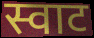
स्वाट